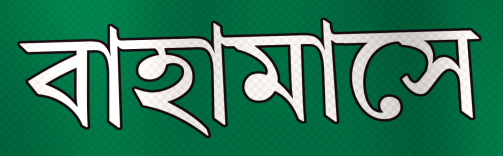
বাহামাসে